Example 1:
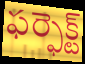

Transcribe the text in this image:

ఫర్ఫెక్ట్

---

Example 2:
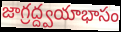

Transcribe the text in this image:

జాగ్రద్ద్వయాభాసం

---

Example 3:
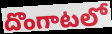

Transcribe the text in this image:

దొంగాటలో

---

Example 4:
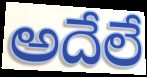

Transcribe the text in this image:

అదేలే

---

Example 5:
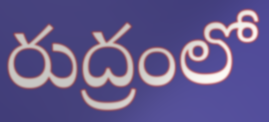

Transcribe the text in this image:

రుద్రంలో